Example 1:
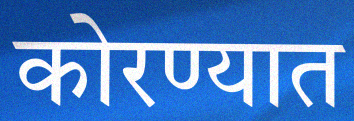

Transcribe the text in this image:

कोरण्यात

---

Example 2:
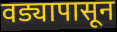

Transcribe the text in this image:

वड्यापासून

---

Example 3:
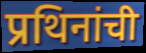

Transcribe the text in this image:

प्रथिनांची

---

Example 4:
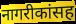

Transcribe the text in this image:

नागरीकांसह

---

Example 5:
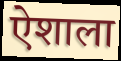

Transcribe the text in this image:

ऐशाला